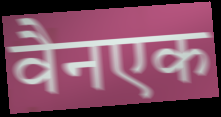
वैनएक